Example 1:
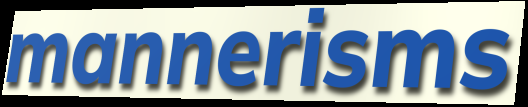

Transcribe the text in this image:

mannerisms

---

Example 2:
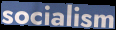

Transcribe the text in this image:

socialism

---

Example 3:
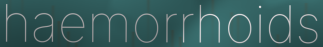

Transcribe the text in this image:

haemorrhoids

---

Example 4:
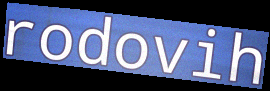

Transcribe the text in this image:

rodovih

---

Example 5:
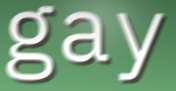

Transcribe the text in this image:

gay